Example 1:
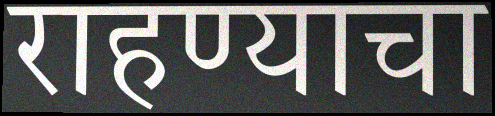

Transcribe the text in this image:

राहण्याचा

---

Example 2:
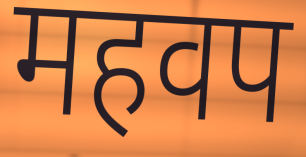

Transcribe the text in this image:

महवप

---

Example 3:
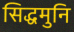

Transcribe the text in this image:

सिद्धमुनि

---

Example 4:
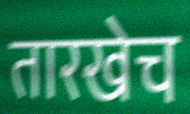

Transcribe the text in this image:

तारखेच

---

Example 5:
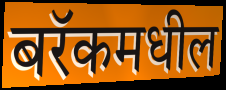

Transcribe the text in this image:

बरॅकमधील